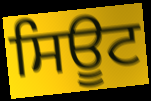
ਸਿਊਟ